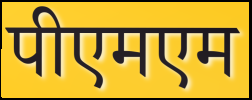
पीएमएम